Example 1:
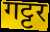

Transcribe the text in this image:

गट्टर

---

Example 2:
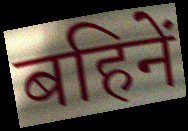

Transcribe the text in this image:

बहिनें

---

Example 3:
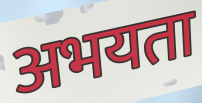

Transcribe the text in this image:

अभयता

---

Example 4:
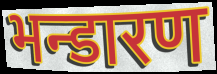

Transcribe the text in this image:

भन्डारण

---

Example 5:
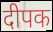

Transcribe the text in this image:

दीपक